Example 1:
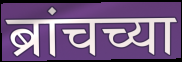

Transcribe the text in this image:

ब्रांचच्या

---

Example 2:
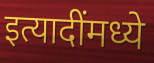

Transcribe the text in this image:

इत्यादींमध्ये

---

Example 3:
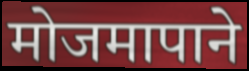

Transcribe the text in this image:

मोजमापाने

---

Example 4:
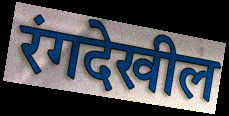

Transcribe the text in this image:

रंगदेखील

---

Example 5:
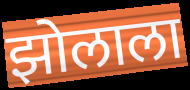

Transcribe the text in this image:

झोलाला